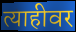
त्याहीवर